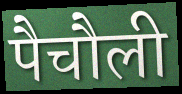
पैचौली